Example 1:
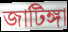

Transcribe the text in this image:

জাটিঙ্গা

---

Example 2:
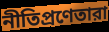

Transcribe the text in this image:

নীতিপ্রণেতারা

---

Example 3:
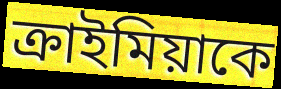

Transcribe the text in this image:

ক্রাইমিয়াকে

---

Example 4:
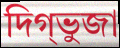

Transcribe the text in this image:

দিগ্ভুজা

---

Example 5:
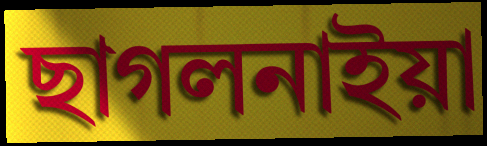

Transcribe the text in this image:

ছাগলনাইয়া